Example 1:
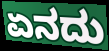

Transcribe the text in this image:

ಏನದು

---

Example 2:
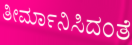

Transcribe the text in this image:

ತೀರ್ಮಾನಿಸಿದಂತೆ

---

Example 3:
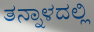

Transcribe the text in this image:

ತನ್ನಾಳದಲ್ಲಿ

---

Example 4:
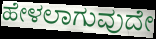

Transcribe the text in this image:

ಹೇಳಲಾಗುವುದೇ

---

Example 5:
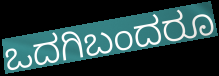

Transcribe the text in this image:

ಒದಗಿಬಂದರೂ